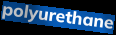
polyurethane